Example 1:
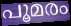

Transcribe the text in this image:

പൂമരം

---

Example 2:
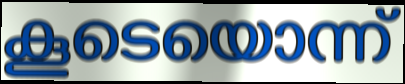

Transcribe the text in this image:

കൂടെയൊന്ന്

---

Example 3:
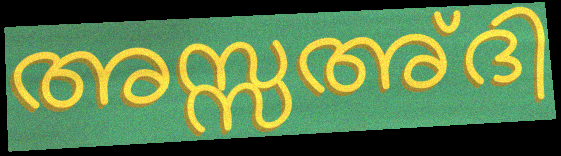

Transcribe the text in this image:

അസ്സഅ്ദി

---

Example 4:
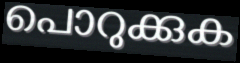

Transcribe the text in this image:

പൊറുക്കുക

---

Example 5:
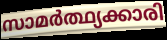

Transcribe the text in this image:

സാമർത്ഥ്യക്കാരി